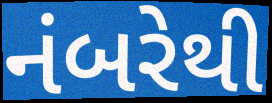
નંબરેથી